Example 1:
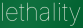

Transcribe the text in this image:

lethality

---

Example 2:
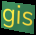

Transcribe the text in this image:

gis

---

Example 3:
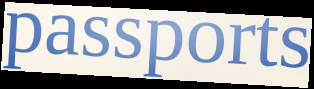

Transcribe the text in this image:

passports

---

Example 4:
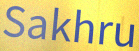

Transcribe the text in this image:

Sakhru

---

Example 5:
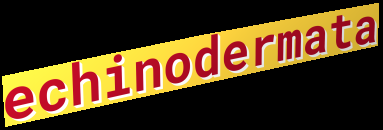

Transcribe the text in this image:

echinodermata